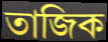
তাজিক